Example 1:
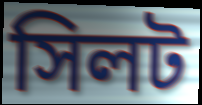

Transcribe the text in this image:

সিলট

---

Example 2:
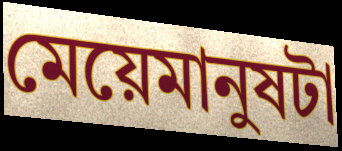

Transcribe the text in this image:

মেয়েমানুষটা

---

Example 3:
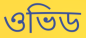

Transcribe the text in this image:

ওভিড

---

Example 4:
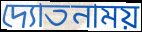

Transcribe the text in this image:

দ্যোতনাময়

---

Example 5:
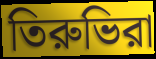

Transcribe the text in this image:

তিরুভিরা